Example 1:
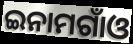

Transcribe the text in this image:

ଇନାମଗାଁଓ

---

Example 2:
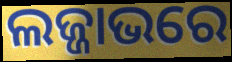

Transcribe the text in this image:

ଲଜ୍ଜାଭରେ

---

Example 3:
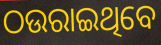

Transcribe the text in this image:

ଠଉରାଇଥିବେ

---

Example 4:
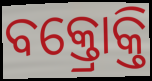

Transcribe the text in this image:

ବକ୍ତ୍ରୋକ୍ତି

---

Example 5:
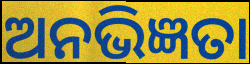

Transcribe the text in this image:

ଅନଭିଜ୍ଞତା